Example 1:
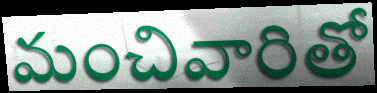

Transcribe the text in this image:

మంచివారితో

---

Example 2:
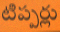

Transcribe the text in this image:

టిప్పర్లు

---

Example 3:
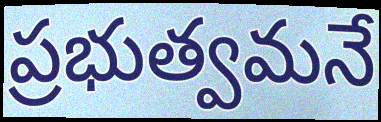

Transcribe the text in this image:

ప్రభుత్వమనే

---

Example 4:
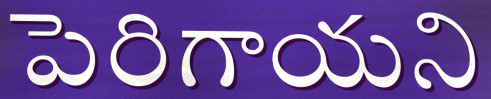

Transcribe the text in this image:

పెరిగాయని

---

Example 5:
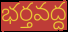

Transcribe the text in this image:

భర్తవద్ద